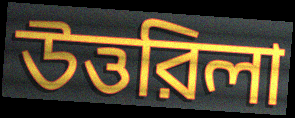
উত্তরিলা